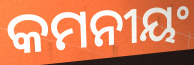
କମନୀୟଂ